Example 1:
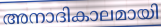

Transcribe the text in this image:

അനാദികാലമായി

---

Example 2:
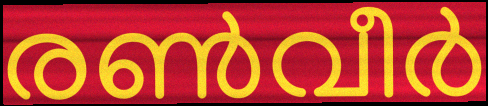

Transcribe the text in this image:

രൺവീർ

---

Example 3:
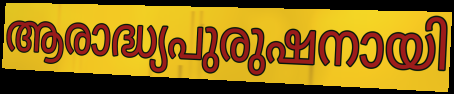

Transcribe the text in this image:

ആരാദ്ധ്യപുരുഷനായി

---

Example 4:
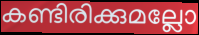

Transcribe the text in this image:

കണ്ടിരിക്കുമല്ലോ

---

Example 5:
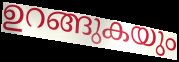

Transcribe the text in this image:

ഉറങ്ങുകയും